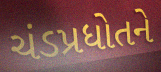
ચંડપ્રધોતને